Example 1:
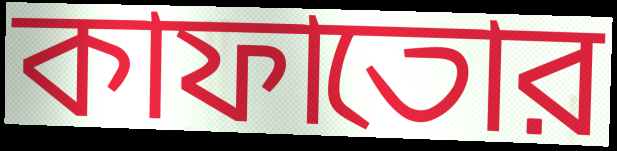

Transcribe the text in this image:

কাফাতোর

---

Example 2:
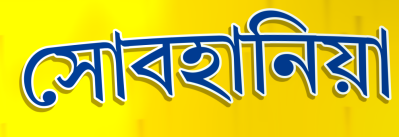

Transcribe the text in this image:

সোবহানিয়া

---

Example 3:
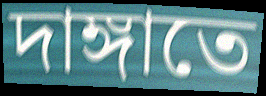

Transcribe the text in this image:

দাঙ্গাতে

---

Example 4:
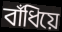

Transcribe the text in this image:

বাঁধিয়ে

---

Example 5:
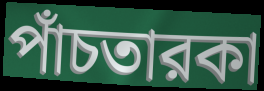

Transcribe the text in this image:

পাঁচতারকা